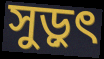
সুড়ুৎ